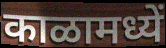
काळामध्यें